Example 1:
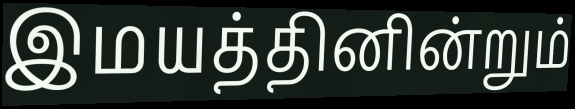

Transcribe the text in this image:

இமயத்தினின்றும்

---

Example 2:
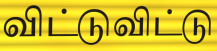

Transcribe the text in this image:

விட்டுவிட்டு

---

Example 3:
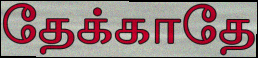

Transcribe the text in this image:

தேக்காதே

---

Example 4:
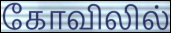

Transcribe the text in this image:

கோவிலில்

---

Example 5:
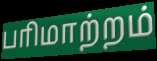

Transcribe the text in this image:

பரிமாற்றம்